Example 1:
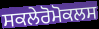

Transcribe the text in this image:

ਸਕਲੇਰੋਮੋਕਲਸ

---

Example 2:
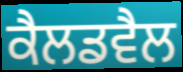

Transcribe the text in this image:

ਕੈਲਡਵੈਲ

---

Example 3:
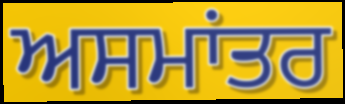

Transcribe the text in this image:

ਅਸਮਾਂਤਰ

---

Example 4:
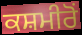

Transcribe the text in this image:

ਕਸ਼ਮੀਰੋਂ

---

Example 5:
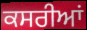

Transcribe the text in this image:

ਕਸਰੀਆਂ